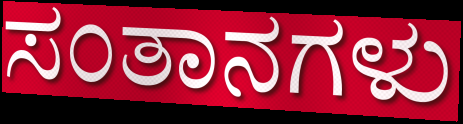
ಸಂತಾನಗಳು